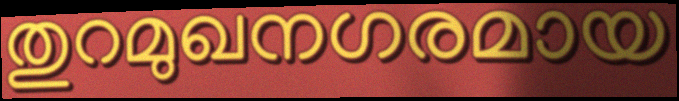
തുറമുഖനഗരമായ